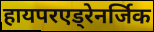
हायपरएड्रेनर्जिक